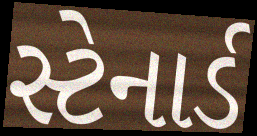
સ્ટેનાર્ડ